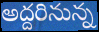
అద్దరినున్న